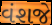
વંશજે